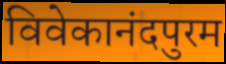
विवेकानंदपुरम